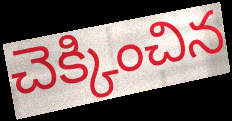
చెక్కించిన